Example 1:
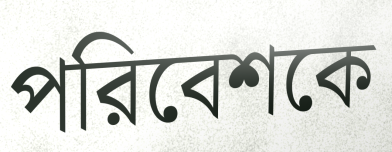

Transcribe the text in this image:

পরিবেশকে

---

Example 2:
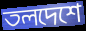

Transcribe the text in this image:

তলদেশে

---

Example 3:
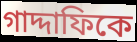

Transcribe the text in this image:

গাদ্দাফিকে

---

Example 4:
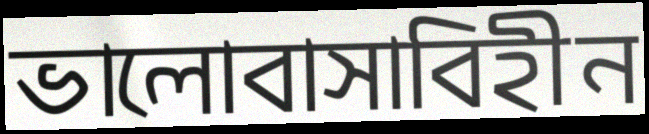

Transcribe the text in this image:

ভালোবাসাবিহীন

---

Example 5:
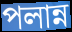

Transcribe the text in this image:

পলান্ন